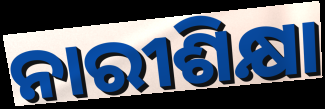
ନାରୀଶିକ୍ଷା